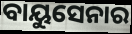
ବାୟୁସେନାର